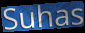
Suhas